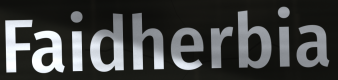
Faidherbia